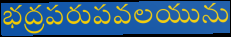
భద్రపరుపవలయును